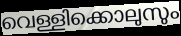
വെള്ളിക്കൊലുസും